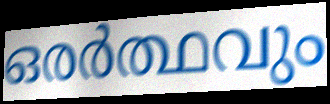
ഒരർത്ഥവും